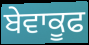
ਬੇਵਾਕੂਫ